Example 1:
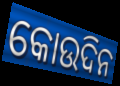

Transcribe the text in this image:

କୋଉଦିନ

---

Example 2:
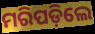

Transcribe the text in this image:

ମରିପଡ଼ିଲେ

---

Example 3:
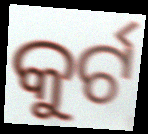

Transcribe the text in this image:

କୁର୍ଟ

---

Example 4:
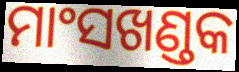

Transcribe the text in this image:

ମାଂସଖଣ୍ଡକ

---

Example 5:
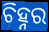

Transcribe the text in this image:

ଚିହ୍ନର